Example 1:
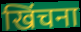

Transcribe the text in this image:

खिंचना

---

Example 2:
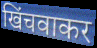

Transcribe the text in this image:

खिंचवाकर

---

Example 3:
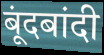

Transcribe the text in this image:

बूंदबांदी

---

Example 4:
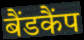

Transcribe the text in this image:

बैंडकैंप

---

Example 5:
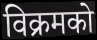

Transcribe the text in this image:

विक्रमको